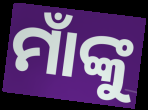
ମାଁଙ୍କୁ